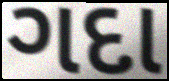
ગદા